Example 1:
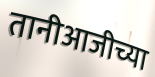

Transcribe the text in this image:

तानीआजीच्या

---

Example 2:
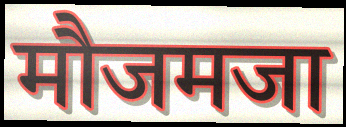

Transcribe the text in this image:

मौजमजा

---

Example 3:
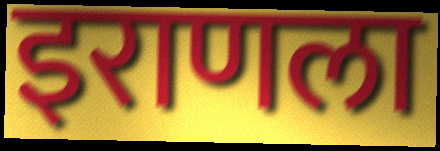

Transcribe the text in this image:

इराणला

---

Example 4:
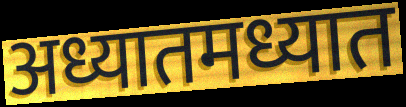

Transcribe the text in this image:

अध्यातमध्यात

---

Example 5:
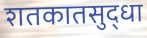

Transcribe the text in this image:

शतकातसुद्धा